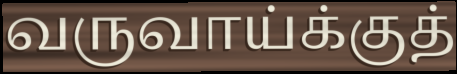
வருவாய்க்குத்